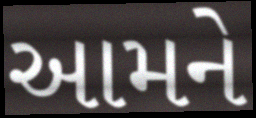
આમને